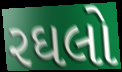
રઘલો